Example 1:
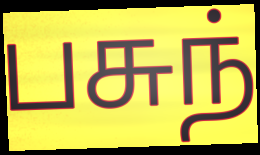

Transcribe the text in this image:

பசுந்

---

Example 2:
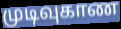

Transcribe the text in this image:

முடிவுகாண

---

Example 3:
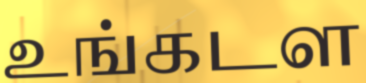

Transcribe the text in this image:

உங்கடள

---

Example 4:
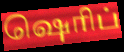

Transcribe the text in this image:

ஷெரிப்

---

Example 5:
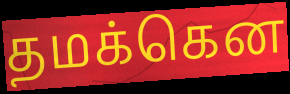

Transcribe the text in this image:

தமக்கென